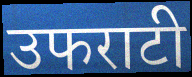
उफराटी